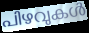
പിഴവുകൾ